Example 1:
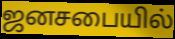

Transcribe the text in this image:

ஜனசபையில்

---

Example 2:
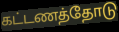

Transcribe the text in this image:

கட்டணத்தோடு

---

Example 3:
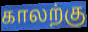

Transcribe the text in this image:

காலற்கு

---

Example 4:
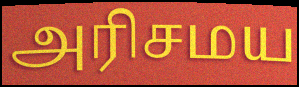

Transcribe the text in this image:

அரிசமய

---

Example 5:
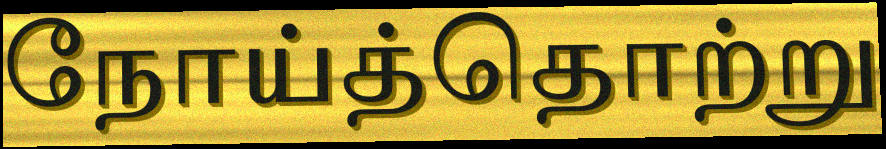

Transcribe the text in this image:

நோய்த்தொற்று